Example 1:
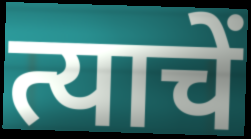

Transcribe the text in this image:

त्याचें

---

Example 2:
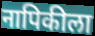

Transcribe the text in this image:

नापिकीला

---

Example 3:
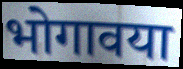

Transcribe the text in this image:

भोगावया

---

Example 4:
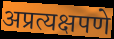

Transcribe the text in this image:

अप्रत्यक्षपणे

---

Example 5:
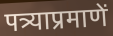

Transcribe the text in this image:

पत्र्याप्रमाणें